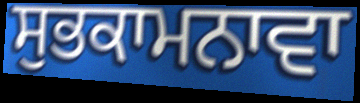
ਸੁਭਕਾਮਨਾਵਾ